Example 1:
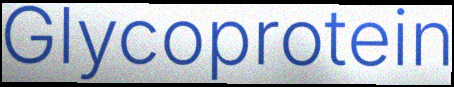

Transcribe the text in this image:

Glycoprotein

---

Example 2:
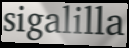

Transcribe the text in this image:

sigalilla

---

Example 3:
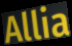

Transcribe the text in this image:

Allia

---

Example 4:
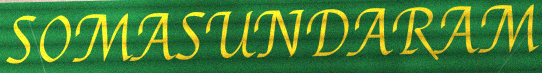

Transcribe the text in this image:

SOMASUNDARAM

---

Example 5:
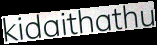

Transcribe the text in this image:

kidaithathu